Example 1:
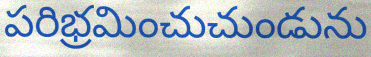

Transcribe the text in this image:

పరిభ్రమించుచుండును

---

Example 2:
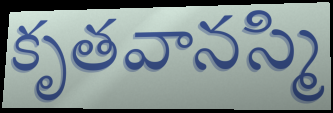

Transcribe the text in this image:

కృతవానస్మి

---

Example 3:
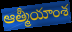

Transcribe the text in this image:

ఆత్మీయాంశ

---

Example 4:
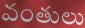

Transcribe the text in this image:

వంతులు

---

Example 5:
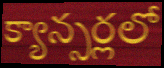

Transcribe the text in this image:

క్యాన్సర్లలో